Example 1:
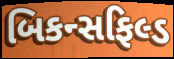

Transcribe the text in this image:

બિકન્સફિલ્ડ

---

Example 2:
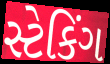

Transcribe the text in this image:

સ્ટેકિંગ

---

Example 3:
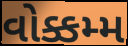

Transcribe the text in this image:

વોક્કમ્મ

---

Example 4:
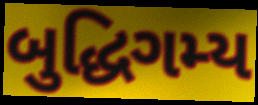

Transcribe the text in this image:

બુદ્ધિગમ્ય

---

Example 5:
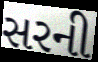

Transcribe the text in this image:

સરની